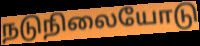
நடுநிலையோடு